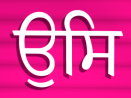
ਉਸਿ